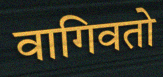
वागिवतो